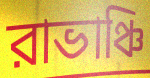
রাভাঞ্চি